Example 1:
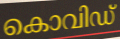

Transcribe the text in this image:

കൊവിഡ്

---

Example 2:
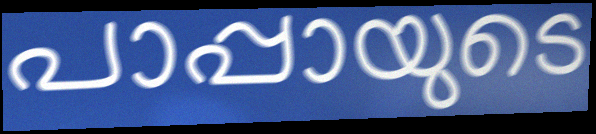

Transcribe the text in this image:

പാപ്പായുടെ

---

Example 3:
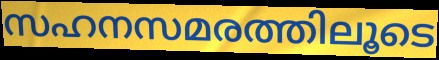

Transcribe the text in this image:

സഹനസമരത്തിലൂടെ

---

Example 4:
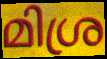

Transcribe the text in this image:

മിശ്ര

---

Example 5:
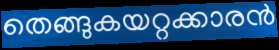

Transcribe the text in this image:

തെങ്ങുകയറ്റക്കാരൻ